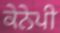
ਕੇਨੇਪੀ